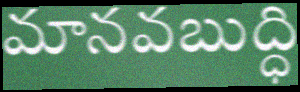
మానవబుద్ధి